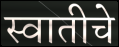
स्वातीचे